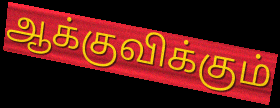
ஆக்குவிக்கும்